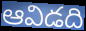
ఆవిడది